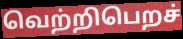
வெற்றிபெறச்